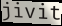
jivit